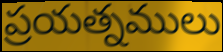
ప్రయత్నములు